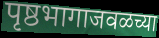
पृष्ठभागाजवळच्या